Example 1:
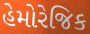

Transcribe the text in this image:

હેમોરેજિક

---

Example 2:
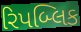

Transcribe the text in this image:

રિપબ્લિક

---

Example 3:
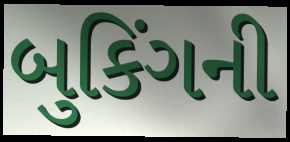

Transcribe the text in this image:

બુકિંગની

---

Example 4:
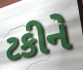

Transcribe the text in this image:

ટકીને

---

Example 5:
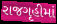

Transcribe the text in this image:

રાજગૃહીમાં